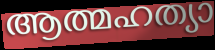
ആത്മഹത്യാ